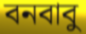
বনবাবু